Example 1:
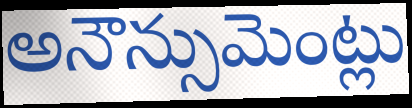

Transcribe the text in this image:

అనౌన్సుమెంట్లు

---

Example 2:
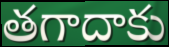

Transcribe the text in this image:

తగాదాకు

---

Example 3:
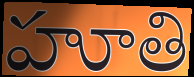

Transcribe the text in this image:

హూతి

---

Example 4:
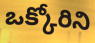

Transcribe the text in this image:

ఒక్కోరిని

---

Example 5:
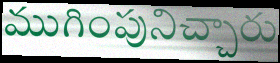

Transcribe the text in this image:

ముగింపునిచ్చారు